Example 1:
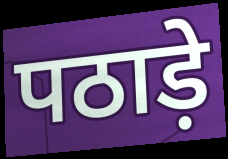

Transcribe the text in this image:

पठाड़े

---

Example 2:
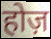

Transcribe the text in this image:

होज़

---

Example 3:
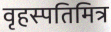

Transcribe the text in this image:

वृहस्पतिमित्र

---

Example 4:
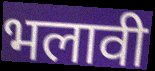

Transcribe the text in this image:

भलावी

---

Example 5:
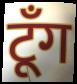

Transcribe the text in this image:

टूँग